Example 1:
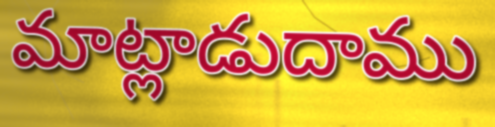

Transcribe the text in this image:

మాట్లాడుదాము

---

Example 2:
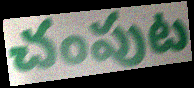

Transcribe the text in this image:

చంపుట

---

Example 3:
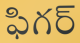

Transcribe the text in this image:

ఫిగర్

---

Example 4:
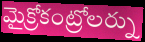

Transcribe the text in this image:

మైక్రోకంట్రోలర్ను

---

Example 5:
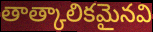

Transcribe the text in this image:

తాత్కాలికమైనవి